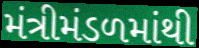
મંત્રીમંડળમાંથી